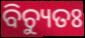
ବିଚ୍ୟୁତଃ